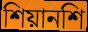
শিয়ানশি